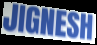
JIGNESH